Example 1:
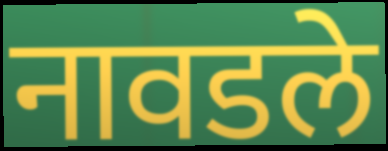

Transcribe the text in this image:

नावडले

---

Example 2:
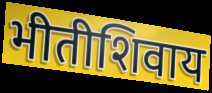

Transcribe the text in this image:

भीतीशिवाय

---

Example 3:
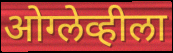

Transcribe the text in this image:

ओग्लेव्हीला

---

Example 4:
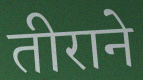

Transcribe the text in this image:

तीराने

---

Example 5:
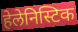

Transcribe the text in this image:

हेलेनिस्टिक